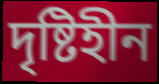
দৃষ্টিহীন